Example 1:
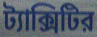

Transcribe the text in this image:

ট্যাক্সিটির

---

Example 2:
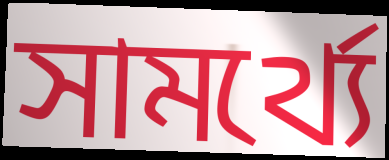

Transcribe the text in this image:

সামর্থ্যে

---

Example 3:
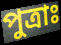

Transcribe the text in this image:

পুত্রাঃ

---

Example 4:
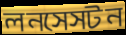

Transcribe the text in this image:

লনসেসটন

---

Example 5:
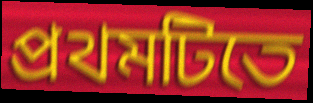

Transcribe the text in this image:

প্রথমটিতে